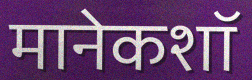
मानेकशॉ